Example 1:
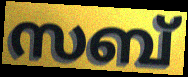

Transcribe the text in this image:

സബ്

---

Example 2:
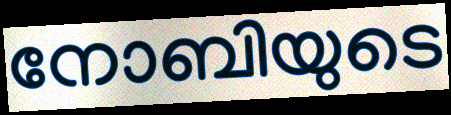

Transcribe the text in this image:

നോബിയുടെ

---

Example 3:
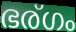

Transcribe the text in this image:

ഭര്ഗം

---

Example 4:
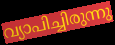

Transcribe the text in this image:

വ്യാപിച്ചിരുന്നു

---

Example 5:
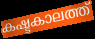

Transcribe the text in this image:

കഷ്ടകാലത്ത്